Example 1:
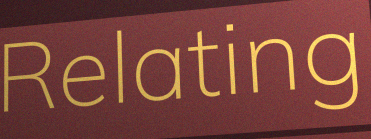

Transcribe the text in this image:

Relating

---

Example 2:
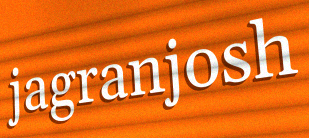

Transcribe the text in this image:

jagranjosh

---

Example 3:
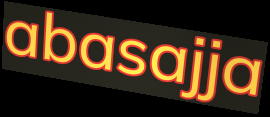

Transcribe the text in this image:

abasajja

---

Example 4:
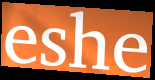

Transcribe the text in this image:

eshe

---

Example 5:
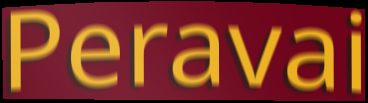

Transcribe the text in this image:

Peravai